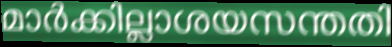
മാർക്കില്ലാശയസന്തതി